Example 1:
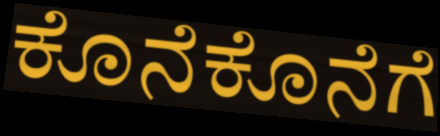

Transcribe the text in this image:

ಕೊನೆಕೊನೆಗೆ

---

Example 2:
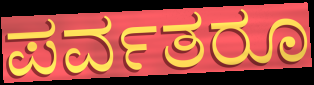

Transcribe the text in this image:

ಪರ್ವತರೂ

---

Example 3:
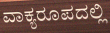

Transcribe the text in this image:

ವಾಕ್ಯರೂಪದಲ್ಲಿ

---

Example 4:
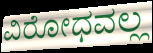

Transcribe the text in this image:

ವಿರೋಧವಲ್ಲ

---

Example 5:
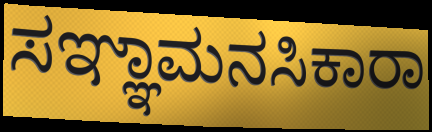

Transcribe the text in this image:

ಸಞ್ಞಾಮನಸಿಕಾರಾ